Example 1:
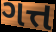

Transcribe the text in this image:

ગત્ત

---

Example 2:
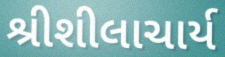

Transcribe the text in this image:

શ્રીશીલાચાર્ય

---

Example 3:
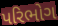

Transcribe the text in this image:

પરિભોગ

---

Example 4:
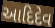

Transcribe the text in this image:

આદિદેવ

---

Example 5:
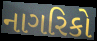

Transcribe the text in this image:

નાગરિકો